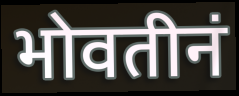
भोवतीनं